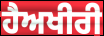
ਹੈਅਖੀਰੀ